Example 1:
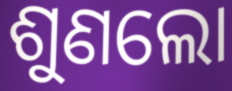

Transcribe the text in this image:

ଶୁଣଲୋ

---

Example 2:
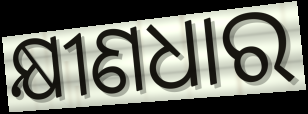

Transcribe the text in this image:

କ୍ଷୀଣଧାର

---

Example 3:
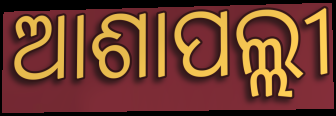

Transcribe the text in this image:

ଆଶାପଲ୍ଲୀ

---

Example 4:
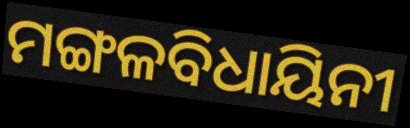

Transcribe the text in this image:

ମଙ୍ଗଳବିଧାୟିନୀ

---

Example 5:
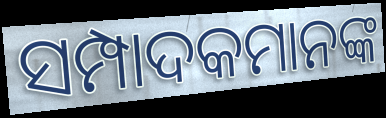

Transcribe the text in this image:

ସମ୍ପାଦକମାନଙ୍କ